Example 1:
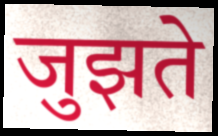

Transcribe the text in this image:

जुझते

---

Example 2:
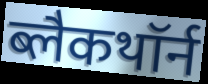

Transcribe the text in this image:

ब्लैकथॉर्न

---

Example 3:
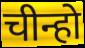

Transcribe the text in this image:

चीन्हो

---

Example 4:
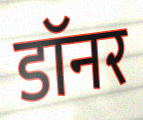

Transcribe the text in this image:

डॉनर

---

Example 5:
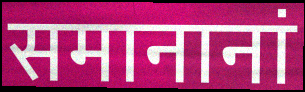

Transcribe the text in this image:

समानानां